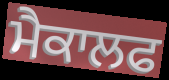
ਮੈਕਾਲਫ